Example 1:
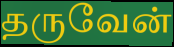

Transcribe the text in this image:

தருவேன்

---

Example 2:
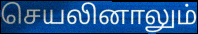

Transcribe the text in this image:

செயலினாலும்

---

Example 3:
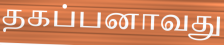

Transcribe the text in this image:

தகப்பனாவது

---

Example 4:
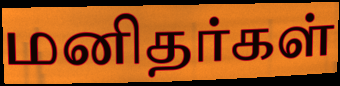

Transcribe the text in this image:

மனிதர்கள்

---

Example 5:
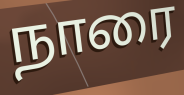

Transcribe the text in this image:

நாரை